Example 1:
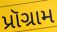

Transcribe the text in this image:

પ્રૉગ્રામ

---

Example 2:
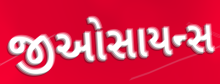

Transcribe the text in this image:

જીઓસાયન્સ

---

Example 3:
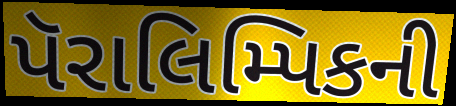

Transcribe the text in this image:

પૅરાલિમ્પિકની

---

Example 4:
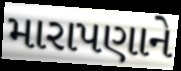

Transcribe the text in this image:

મારાપણાને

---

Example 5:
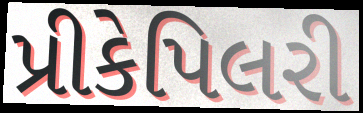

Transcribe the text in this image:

પ્રીકેપિલરી